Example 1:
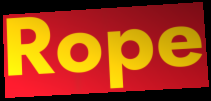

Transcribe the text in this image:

Rope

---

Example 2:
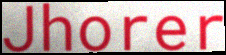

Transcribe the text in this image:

Jhorer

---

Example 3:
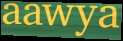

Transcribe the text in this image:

aawya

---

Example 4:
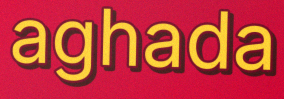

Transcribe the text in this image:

aghada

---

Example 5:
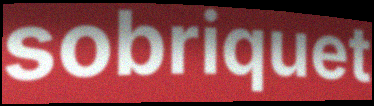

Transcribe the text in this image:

sobriquet